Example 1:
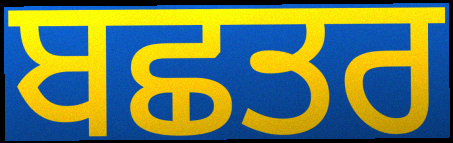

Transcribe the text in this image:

ਬਛਤਰ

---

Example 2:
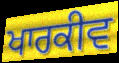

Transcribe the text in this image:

ਖਾਰਕੀਵ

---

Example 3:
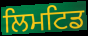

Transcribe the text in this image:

ਲਿਮਟਿਡ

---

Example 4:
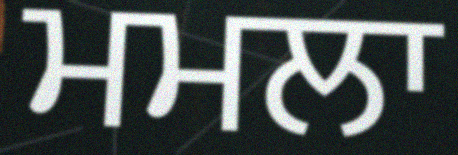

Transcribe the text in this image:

ਮਮਲਾ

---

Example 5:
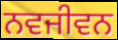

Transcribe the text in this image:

ਨਵਜੀਵਨ